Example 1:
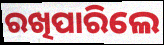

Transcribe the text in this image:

ରଖିପାରିଲେ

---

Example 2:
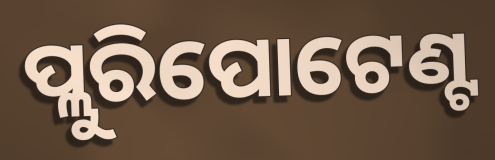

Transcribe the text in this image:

ପ୍ଲୁରିପୋଟେଣ୍ଟ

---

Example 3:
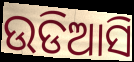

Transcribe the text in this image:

ଉଡିଆସି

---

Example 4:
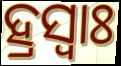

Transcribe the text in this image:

ହ୍ରସ୍ଵାଃ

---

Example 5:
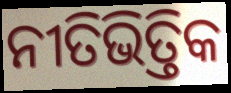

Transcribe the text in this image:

ନୀତିଭିତ୍ତିକ